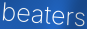
beaters